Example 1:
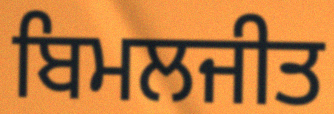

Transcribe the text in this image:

ਬਿਮਲਜੀਤ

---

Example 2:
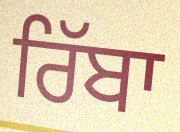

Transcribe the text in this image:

ਰਿੱਬਾ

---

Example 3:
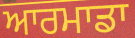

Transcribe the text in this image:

ਆਰਮਾਡਾ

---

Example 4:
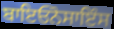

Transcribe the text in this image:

ਬਾਇਓਨੋਸਾਇੰਸ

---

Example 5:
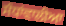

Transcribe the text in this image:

ਸੰਧਾਂਵਾਲੀਆ